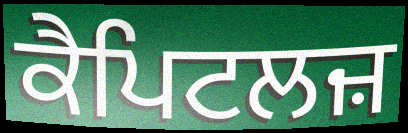
ਕੈਪਿਟਲਜ਼